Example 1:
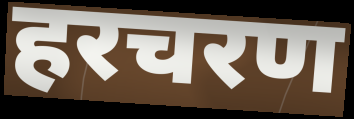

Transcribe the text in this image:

हरचरण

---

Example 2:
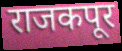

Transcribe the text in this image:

राजकपूर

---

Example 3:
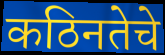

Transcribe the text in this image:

कठिनतेचे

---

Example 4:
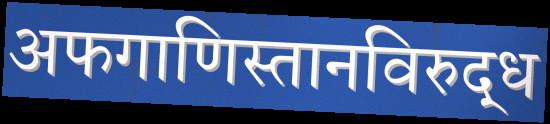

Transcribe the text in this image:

अफगाणिस्तानविरुद्ध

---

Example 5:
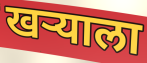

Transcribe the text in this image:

खर्‍याला